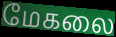
மேகலை